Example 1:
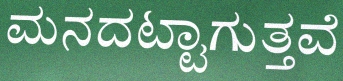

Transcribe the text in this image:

ಮನದಟ್ಟಾಗುತ್ತವೆ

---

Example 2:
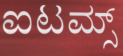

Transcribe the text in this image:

ಐಟಮ್ಸ್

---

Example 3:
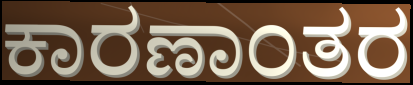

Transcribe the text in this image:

ಕಾರಣಾಂತರ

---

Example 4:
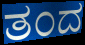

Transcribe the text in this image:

ತಂದ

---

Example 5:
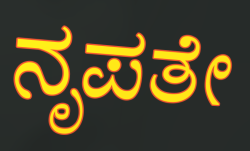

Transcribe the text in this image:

ನೃಪತೇ